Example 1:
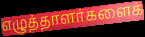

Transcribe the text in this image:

எழுத்தாளர்களைக்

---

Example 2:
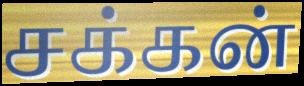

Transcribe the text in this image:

சக்கன்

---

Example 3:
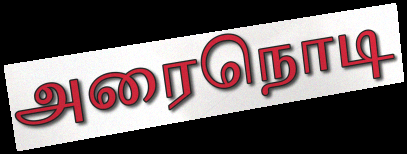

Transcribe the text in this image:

அரைநொடி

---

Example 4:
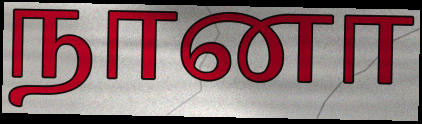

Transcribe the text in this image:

நானா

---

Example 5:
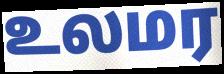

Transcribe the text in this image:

உலமர